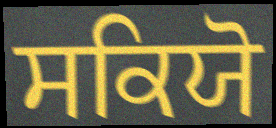
ਸਕਿਯੋ